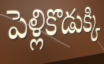
పెళ్లికొడుక్కి